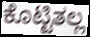
ಕೊಟ್ಟಿತಲ್ಲ